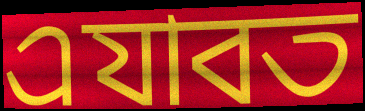
এযাবত